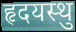
हृदयस्थु